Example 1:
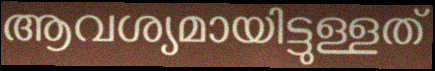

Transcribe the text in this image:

ആവശ്യമായിട്ടുള്ളത്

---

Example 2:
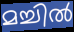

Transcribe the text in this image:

മച്ചിൽ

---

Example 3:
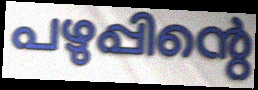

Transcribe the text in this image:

പഴുപ്പിന്റെ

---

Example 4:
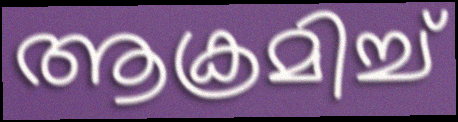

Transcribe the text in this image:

ആക്രമിച്ച്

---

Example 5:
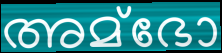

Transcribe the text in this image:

അമ്ഭോ